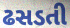
ઢસડતી